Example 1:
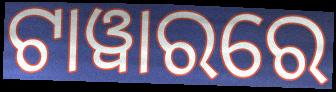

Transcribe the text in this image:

ଟାୱାରରେ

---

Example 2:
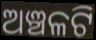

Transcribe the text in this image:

ଅଞ୍ଚଳଟି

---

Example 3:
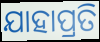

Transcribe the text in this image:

ଯାହାପ୍ରତି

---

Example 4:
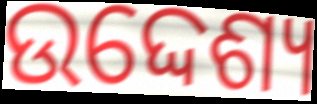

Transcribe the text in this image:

ଉଦ୍ଦେଶ୍ୟ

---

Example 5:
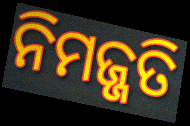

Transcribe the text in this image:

ନିମଜ୍ଜତି